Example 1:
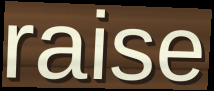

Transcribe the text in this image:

raise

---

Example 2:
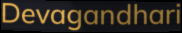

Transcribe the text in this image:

Devagandhari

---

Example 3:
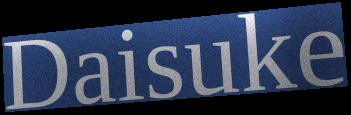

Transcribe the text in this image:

Daisuke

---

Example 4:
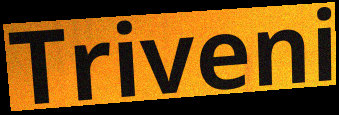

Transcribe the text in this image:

Triveni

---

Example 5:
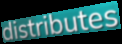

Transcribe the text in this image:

distributes